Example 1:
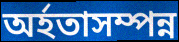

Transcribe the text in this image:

অৰ্হতাসম্পন্ন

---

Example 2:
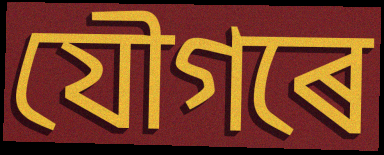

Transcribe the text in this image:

যৌগৰে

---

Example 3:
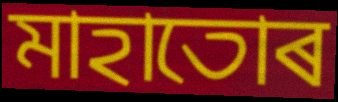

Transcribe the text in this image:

মাহাতোৰ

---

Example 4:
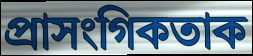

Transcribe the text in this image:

প্ৰাসংগিকতাক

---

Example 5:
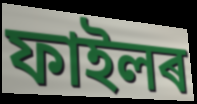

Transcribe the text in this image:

ফাইলৰ